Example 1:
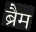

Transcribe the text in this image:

ब्रैम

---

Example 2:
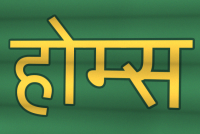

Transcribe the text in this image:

होम्स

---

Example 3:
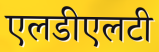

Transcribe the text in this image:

एलडीएलटी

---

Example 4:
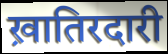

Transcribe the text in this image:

ख़ातिरदारी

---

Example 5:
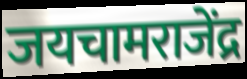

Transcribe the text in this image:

जयचामराजेंद्र